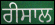
ਰੀਸਾਲ